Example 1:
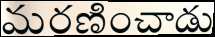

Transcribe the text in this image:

మరణించాడు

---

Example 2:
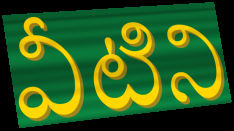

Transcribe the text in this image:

వీటిని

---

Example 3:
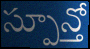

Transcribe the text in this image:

స్పూన్తో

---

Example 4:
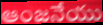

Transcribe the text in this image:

ఆంజనేయు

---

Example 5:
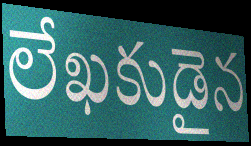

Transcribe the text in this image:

లేఖకుడైన